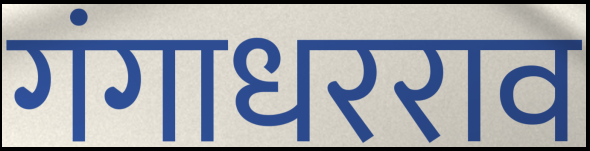
गंगाधरराव